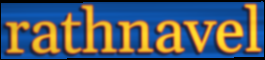
rathnavel